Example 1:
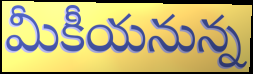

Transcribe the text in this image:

మీకీయనున్న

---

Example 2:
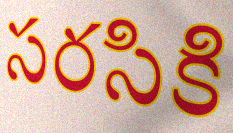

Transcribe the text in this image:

సరసికి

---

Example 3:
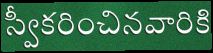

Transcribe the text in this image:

స్వీకరించినవారికి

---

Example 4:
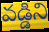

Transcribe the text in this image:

వడ్డిని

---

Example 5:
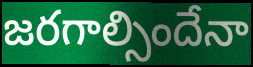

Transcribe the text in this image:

జరగాల్సిందేనా